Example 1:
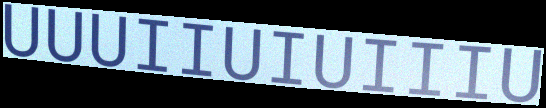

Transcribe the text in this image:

UUUIIUIUIIIU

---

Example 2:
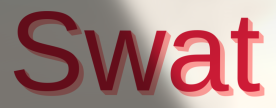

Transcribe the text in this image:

Swat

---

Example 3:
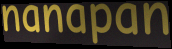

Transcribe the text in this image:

nanapan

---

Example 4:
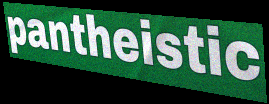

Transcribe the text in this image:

pantheistic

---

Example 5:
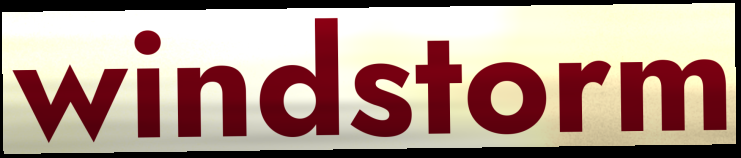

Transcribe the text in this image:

windstorm